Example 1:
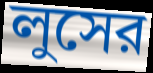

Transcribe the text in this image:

লুসের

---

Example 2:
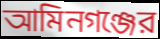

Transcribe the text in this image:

আমিনগঞ্জের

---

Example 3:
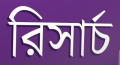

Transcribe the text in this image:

রিসার্চ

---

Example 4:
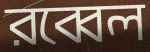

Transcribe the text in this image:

রব্বেল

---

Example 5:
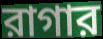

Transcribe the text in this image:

রাগার